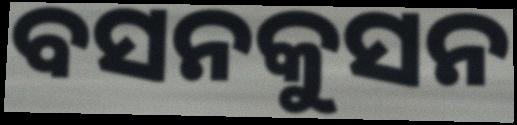
ବସନକୁସନ